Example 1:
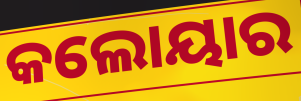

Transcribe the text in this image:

କଲୋୟାର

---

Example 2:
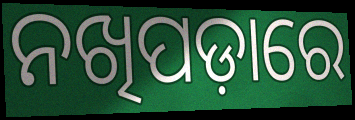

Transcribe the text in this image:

ନଖିପଡ଼ାରେ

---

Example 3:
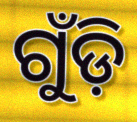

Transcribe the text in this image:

ଗୁଁଡ଼ି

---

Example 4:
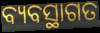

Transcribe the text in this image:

ବ୍ୟବସ୍ଥାଗତ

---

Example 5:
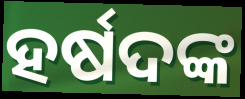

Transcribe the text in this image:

ହର୍ଷଦଙ୍କ